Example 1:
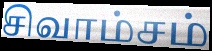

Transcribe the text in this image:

சிவாம்சம்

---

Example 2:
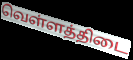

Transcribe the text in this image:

வெள்ளத்திடை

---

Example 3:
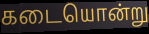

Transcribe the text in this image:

கடையொன்று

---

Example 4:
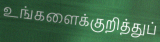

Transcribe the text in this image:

உங்களைக்குறித்துப்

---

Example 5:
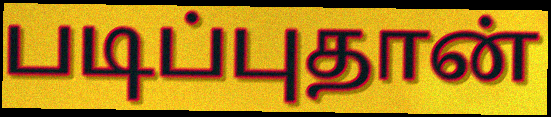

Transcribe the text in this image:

படிப்புதான்